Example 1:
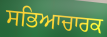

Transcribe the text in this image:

ਸਭਿਆਚਾਰਕ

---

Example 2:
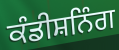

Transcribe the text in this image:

ਕੰਡੀਸ਼ਨਿੰਗ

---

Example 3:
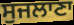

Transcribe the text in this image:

ਸੁਜਲਾਣਾ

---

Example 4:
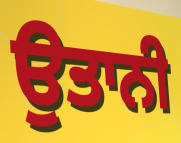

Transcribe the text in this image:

ਉਤਾਨੀ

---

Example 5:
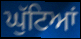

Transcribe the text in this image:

ਘੁੱਟਿਆਂ